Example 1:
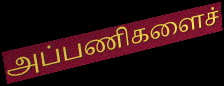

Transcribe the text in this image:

அப்பணிகளைச்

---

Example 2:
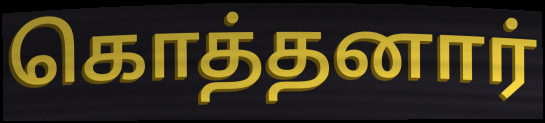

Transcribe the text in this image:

கொத்தனார்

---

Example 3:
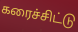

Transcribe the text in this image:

கரைச்சிட்டு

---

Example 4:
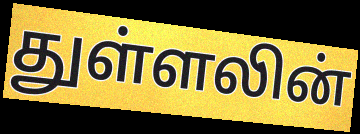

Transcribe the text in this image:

துள்ளலின்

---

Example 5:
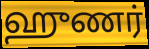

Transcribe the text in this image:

ஹுணர்